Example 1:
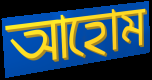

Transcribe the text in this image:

আহোম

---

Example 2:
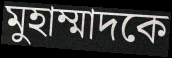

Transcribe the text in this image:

মুহাম্মাদকে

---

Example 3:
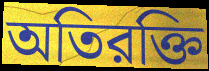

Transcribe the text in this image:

অতিরক্তি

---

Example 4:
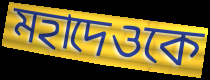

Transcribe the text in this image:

মহাদেওকে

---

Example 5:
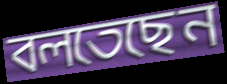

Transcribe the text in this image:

বলতেছেন